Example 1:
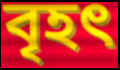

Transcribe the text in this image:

বৃহৎ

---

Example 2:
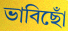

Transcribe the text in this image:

ভাবিছোঁ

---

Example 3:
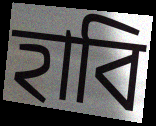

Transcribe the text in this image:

হাবি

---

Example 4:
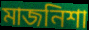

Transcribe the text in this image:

মাজনিশা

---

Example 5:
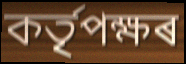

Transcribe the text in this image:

কৰ্তৃপক্ষৰ